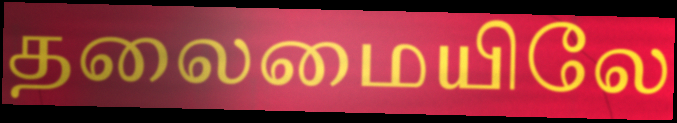
தலைமையிலே